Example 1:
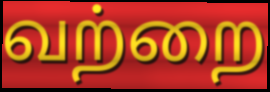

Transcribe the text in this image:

வற்றை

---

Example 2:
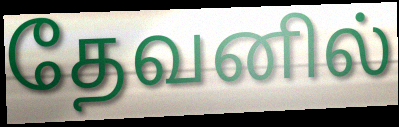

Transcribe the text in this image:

தேவனில்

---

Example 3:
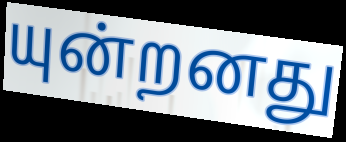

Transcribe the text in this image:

யுன்றனது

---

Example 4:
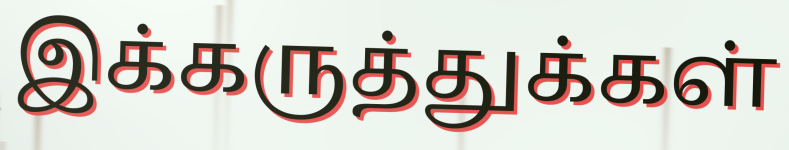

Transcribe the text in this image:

இக்கருத்துக்கள்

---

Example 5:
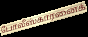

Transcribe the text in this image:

போலீஸ்காரனைக்